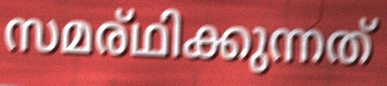
സമര്ഥിക്കുന്നത്